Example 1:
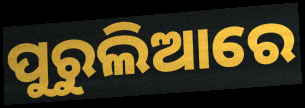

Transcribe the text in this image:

ପୁରୁଲିଆରେ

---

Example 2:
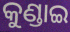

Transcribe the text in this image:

କୁଣ୍ଡାଇ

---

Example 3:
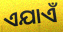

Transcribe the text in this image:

ଏଯାଏଁ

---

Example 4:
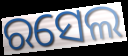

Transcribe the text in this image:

ରସେଲ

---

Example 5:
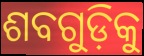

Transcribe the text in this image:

ଶବଗୁଡ଼ିକୁ